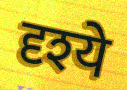
दृश्‍ये